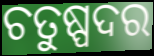
ଚତୁଷ୍ପଦର